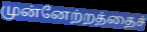
முன்னேற்றத்தைச்